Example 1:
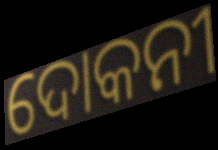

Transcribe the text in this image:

ଦୋକନୀ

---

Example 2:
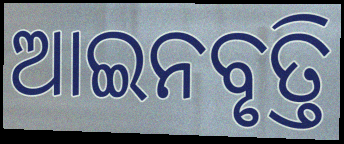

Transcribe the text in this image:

ଆଇନବୃତ୍ତି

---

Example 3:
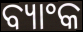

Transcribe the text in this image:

ବ୍ୟାଂକ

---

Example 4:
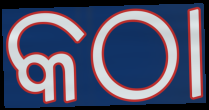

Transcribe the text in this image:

କଠା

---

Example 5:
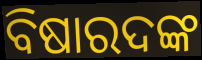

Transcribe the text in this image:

ବିଷାରଦଙ୍କ